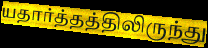
யதார்த்தத்திலிருந்து